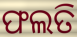
ଫଲତି